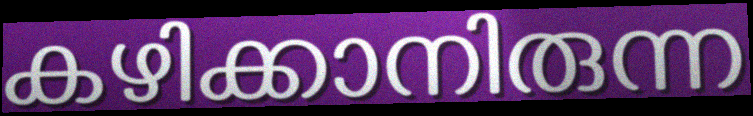
കഴിക്കാനിരുന്ന